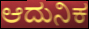
ಆದುನಿಕ